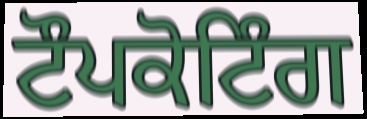
ਟੌਪਕੋਟਿੰਗ